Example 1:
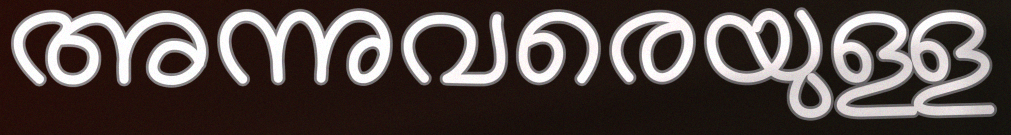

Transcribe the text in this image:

അന്നുവരെയുള്ള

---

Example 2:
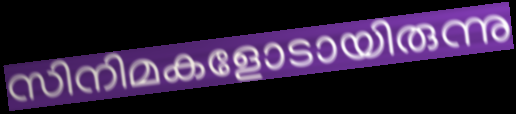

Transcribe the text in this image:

സിനിമകളോടായിരുന്നു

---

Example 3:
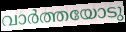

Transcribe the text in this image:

വാർത്തയോടു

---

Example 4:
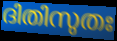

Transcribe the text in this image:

ദിതിസുതഃ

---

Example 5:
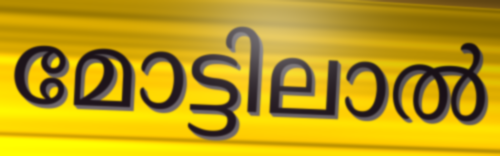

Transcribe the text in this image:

മോട്ടിലാൽ